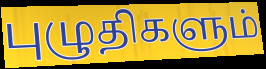
புழுதிகளும்